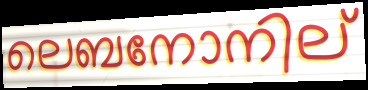
ലെബനോനില്